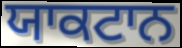
ਯਾਕਟਾਨ